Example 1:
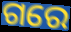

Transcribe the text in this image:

ଗରେ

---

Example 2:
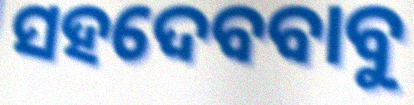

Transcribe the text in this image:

ସହଦେବବାବୁ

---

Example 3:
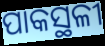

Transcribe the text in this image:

ପାକସ୍ଥଳୀ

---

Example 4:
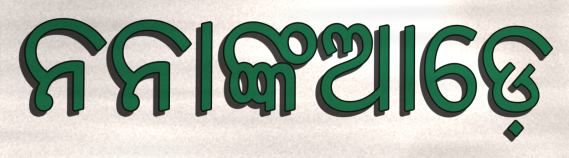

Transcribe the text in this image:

ନନାଙ୍କଆଡ଼େ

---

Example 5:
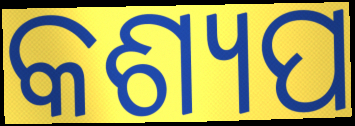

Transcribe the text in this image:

କଶ୍ୟପ